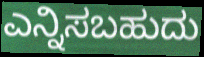
ಎನ್ನಿಸಬಹುದು